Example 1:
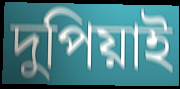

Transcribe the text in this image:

দুপিয়াই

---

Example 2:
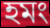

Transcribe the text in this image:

হমং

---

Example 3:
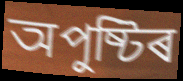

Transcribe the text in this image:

অপুষ্টিৰ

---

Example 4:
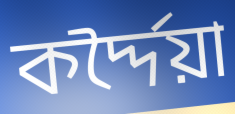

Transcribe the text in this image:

কৰ্দ্দৈয়া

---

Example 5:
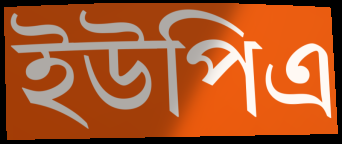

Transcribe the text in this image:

ইউপিএ